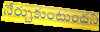
నేర్చుకుంటుందని